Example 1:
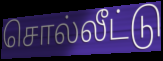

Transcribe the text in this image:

சொல்லீட்டு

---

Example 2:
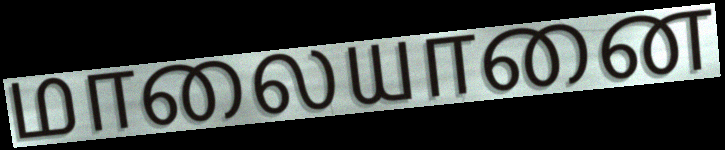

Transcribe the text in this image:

மாலையானை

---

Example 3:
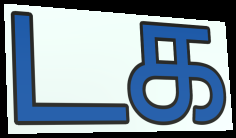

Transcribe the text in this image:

டக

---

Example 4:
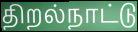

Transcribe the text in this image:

திறல்நாட்டு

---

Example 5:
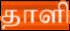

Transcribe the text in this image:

தாளி